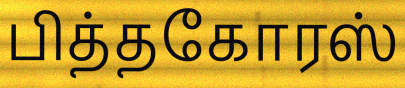
பித்தகோரஸ்